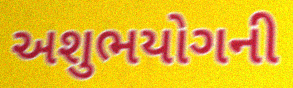
અશુભયોગની